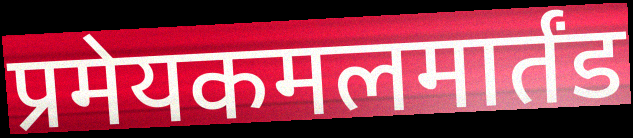
प्रमेयकमलमार्तंड